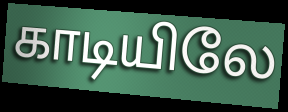
காடியிலே